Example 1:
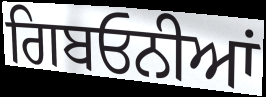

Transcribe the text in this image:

ਗਿਬਓਨੀਆਂ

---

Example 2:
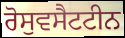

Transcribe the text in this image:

ਰੋਸੁਵਸੈਟਟੀਨ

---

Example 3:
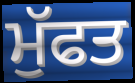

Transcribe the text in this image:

ਮੁੱਫਤ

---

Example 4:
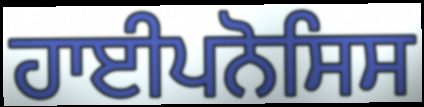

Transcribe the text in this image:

ਹਾਈਪਨੋਸਿਸ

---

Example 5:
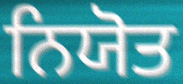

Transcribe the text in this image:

ਨਿਯੋਤ